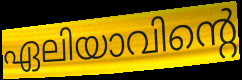
ഏലിയാവിന്റെ